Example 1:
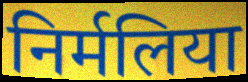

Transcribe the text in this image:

निर्मलिया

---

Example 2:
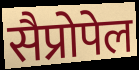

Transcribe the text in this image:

सैप्रोपेल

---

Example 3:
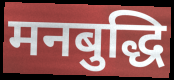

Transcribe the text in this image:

मनबुद्धि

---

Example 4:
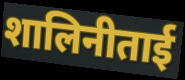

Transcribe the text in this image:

शालिनीताई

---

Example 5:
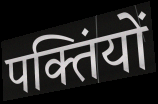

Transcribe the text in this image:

पक्तिंयों